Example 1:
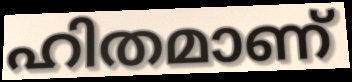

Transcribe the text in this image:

ഹിതമാണ്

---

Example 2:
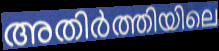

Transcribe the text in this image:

അതിർത്തിയിലെ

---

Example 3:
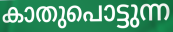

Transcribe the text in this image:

കാതുപൊട്ടുന്ന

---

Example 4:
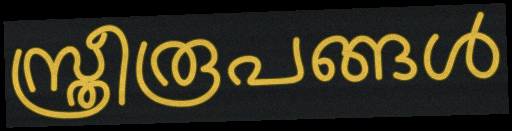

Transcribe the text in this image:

സ്ത്രീരൂപങ്ങൾ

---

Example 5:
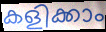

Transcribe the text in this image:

കളിക്കാം